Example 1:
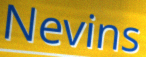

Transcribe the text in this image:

Nevins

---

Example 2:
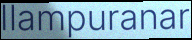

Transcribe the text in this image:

Ilampuranar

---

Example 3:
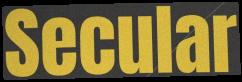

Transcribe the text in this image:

Secular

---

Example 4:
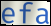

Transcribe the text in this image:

efa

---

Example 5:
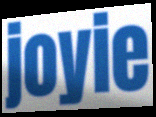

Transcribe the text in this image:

joyie